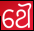
ଥୈ